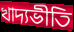
খাদ্যভীতি